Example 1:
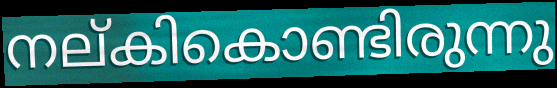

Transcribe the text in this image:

നല്കികൊണ്ടിരുന്നു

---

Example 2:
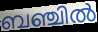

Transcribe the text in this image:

ബഞ്ചിൽ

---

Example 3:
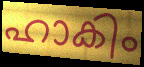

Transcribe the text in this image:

ഹാകിം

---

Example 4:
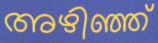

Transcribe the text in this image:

അഴിഞ്ഞ്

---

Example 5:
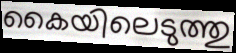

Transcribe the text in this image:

കൈയിലെടുത്തു